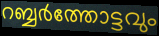
റബ്ബർത്തോട്ടവും